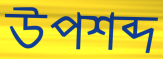
উপশব্দ